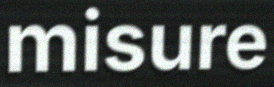
misure